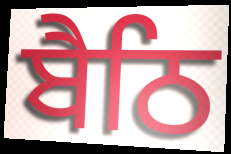
ਬੈਠਿ